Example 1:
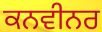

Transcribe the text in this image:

ਕਨਵੀਨਰ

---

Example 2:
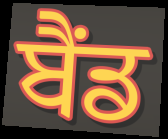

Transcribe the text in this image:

ਬੈੰਡ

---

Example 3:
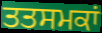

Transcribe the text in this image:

ਤਤਸਮਕਾਂ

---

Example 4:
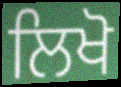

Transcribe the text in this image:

ਲਿਖੋ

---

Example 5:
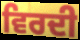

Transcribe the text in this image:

ਵਿਰਦੀ